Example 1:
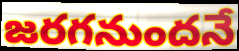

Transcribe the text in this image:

జరగనుందనే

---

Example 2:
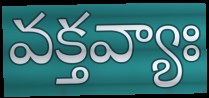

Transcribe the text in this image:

వక్తవ్యాః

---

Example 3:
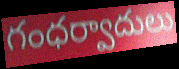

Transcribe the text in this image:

గంధర్వాదులు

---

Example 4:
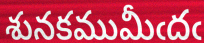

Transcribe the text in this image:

శునకముమీఁదఁ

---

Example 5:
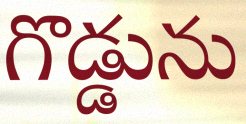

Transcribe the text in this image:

గొడ్డును